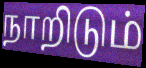
நாறிடும்